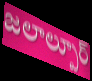
జలాల్పూర్